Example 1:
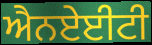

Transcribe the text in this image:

ਐਨਏਈਟੀ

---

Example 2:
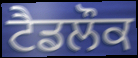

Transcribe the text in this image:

ਟੈਡਲੌਕ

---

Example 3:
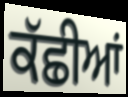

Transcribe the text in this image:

ਕੱਛੀਆਂ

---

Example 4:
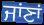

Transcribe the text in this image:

ਜਾਂਣਾਂ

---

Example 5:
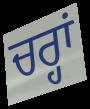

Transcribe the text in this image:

ਚਰ੍ਹਾਂ